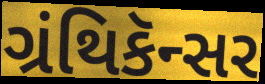
ગ્રંથિકૅન્સર